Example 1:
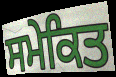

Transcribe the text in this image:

ਸਮੇਕਿਤ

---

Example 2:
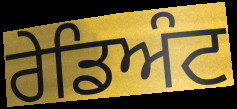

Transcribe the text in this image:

ਰੇਡਿਅੰਟ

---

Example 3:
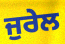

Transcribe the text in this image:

ਜੁਰੇਲ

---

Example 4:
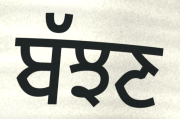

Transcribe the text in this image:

ਬੱਝਣ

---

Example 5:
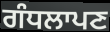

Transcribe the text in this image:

ਗੰਧਲਾਪਣ